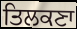
ਤਿਲਕਣਾ